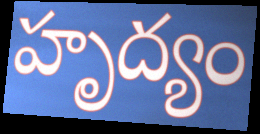
హృద్యం